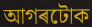
আগৰটোক